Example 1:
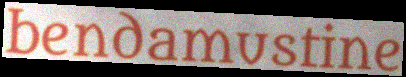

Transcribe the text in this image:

bendamustine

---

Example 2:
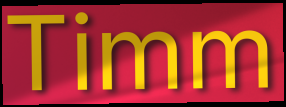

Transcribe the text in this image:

Timm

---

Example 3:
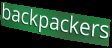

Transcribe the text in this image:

backpackers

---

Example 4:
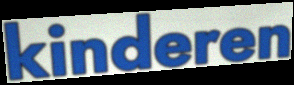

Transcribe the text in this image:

kinderen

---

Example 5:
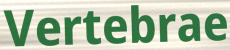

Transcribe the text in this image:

Vertebrae